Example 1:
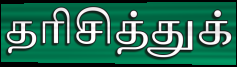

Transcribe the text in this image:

தரிசித்துக்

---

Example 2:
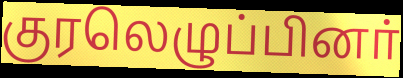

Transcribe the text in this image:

குரலெழுப்பினர்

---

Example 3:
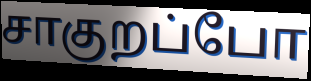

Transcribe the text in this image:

சாகுறப்போ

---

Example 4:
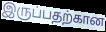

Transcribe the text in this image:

இருப்பதற்கான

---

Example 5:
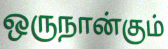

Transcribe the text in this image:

ஒருநான்கும்